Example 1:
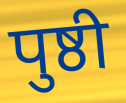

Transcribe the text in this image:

पुष्ठी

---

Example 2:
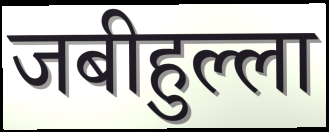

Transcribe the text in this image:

जबीहुल्ला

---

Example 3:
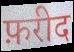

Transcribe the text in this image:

फ़रीद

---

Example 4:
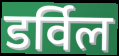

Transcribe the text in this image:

डर्विल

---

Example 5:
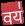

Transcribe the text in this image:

वय॑